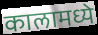
कालामध्ये